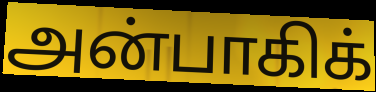
அன்பாகிக்